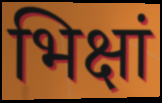
भिक्षां